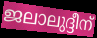
ജലാലുദ്ദീന്